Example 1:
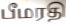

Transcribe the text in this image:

பீமரதி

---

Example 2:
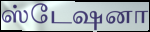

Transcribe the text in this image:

ஸ்டேஷனா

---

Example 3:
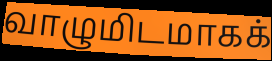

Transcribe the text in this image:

வாழுமிடமாகக்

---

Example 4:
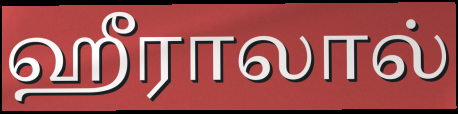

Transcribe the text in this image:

ஹீராலால்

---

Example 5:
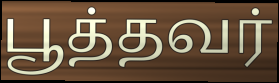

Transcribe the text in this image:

பூத்தவர்